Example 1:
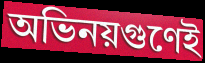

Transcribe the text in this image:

অভিনয়গুণেই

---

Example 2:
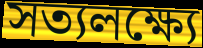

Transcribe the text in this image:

সত্যলক্ষ্যে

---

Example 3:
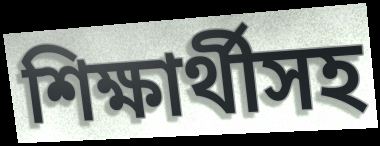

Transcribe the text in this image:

শিক্ষার্থীসহ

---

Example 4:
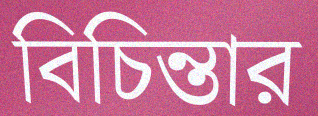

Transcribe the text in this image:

বিচিন্তার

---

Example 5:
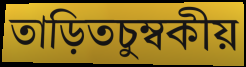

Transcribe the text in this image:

তাড়িতচুম্বকীয়